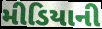
મીડિયાની